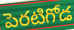
పెరటిగోడ